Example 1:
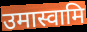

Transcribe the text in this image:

उमास्वामि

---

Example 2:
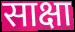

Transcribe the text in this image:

साक्षा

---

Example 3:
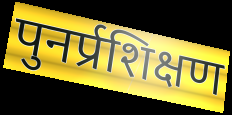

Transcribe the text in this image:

पुनर्प्रशिक्षण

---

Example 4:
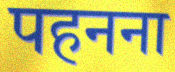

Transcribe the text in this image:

पहनना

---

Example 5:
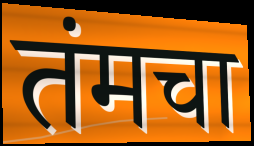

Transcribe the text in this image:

तंमचा